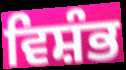
ਵਿਸ਼ੰਭ